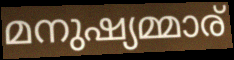
മനുഷ്യമ്മാര്